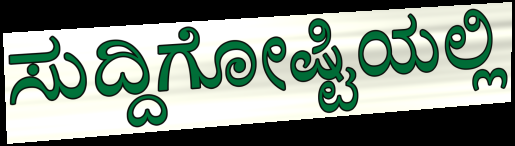
ಸುದ್ದಿಗೋಷ್ಟಿಯಲ್ಲಿ